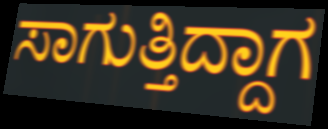
ಸಾಗುತ್ತಿದ್ದಾಗ